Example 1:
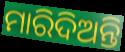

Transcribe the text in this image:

ମାରିଦିଅନ୍ତି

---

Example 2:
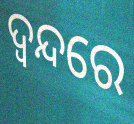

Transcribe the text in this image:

ଦ୍ଵନ୍ଦରେ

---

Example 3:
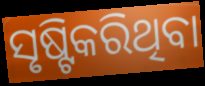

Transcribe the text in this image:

ସୃଷ୍ଟିକରିଥିବା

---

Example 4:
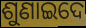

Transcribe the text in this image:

ଶୁଣାଇଦେ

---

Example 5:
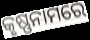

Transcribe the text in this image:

କୃଷ୍ଣନାମରେ